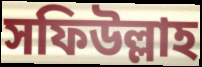
সফিউল্লাহ